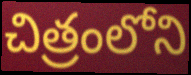
చిత్రంలోని